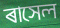
ৰাসেল